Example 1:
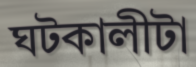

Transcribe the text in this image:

ঘটকালীটা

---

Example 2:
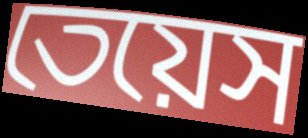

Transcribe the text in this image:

তেয়েস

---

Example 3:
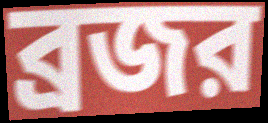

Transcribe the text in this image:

ব্রজর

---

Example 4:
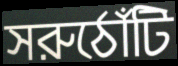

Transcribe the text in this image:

সরুঠোঁটি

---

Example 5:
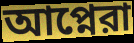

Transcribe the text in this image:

আপ্নেরা